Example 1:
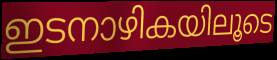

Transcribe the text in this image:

ഇടനാഴികയിലൂടെ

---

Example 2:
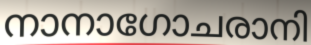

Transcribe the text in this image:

നാനാഗോചരാനി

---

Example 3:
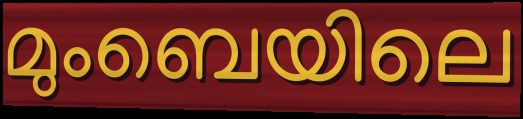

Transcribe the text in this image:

മുംബെയിലെ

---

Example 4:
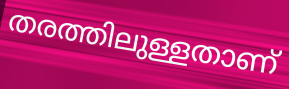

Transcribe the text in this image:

തരത്തിലുള്ളതാണ്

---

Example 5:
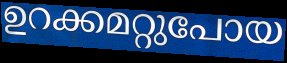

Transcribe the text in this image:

ഉറക്കമറ്റുപോയ